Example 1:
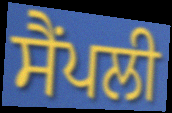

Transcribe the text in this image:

ਸੈਂਪਲੀ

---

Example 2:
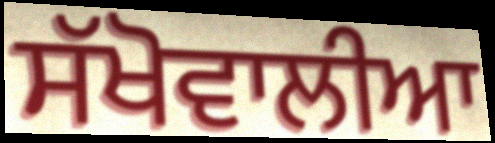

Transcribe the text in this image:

ਸੱਖੋਵਾਲੀਆ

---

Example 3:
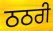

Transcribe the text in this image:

ਠਠਰੀ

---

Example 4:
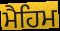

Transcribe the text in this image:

ਮੈਹਿਮ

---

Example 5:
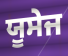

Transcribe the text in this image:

ਯੂਸੇਜ